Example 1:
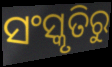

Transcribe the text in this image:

ସଂସ୍କୃତିରୁ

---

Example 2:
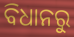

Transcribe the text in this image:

ବିଧାନରୁ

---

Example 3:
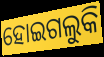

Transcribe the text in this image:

ହୋଇଗଲୁକି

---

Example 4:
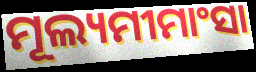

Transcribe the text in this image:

ମୂଲ୍ୟମୀମାଂସା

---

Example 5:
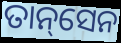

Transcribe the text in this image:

ତାନ୍‌ସେନ